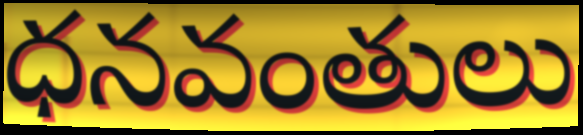
ధనవంతులు